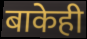
बाकेही